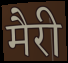
मैरी